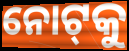
ନୋଟ୍‌କୁ